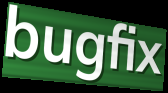
bugfix